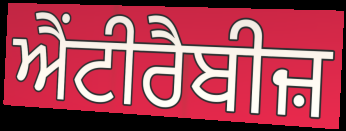
ਐਂਟੀਰੈਬੀਜ਼